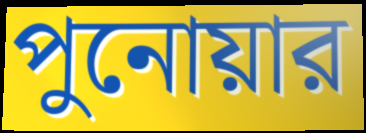
পুনোয়ার